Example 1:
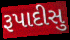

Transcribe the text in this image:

રૂપાદીસુ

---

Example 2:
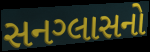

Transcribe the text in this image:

સનગ્લાસનો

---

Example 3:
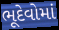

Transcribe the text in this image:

ભૂદેવોમાં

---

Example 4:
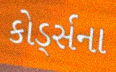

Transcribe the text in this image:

કોર્ડ્સના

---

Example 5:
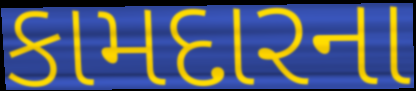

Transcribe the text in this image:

કામદારના